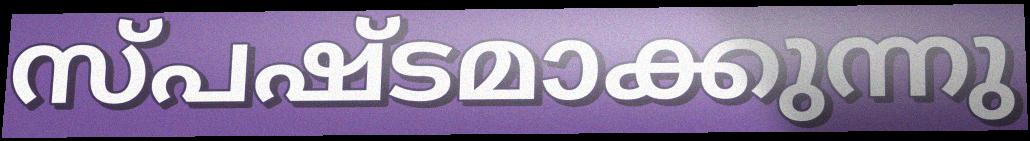
സ്പഷ്ടമാക്കുന്നു